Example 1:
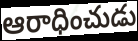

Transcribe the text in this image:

ఆరాధించుడు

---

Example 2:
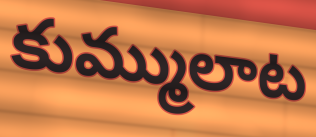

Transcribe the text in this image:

కుమ్ములాట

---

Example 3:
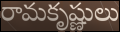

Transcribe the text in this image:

రామకృష్ణులు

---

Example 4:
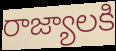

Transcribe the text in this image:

రాజ్యాలకి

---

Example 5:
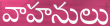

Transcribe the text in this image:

వాహనులు